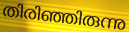
തിരിഞ്ഞിരുന്നു